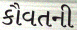
કૌવતની